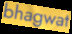
bhagwat